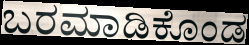
ಬರಮಾಡಿಕೊಂಡ